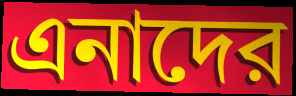
এনাদের